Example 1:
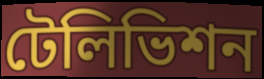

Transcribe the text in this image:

টেলিভিশন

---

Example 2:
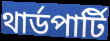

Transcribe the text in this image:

থার্ডপার্টি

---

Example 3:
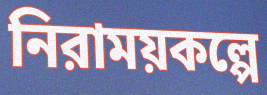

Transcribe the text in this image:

নিরাময়কল্পে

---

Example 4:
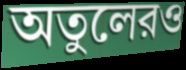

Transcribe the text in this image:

অতুলেরও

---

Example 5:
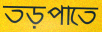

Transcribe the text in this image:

তড়পাতে